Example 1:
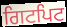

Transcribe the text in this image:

ਗਿਟਪਿਟ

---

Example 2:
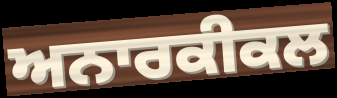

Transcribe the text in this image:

ਅਨਾਰਕੀਕਲ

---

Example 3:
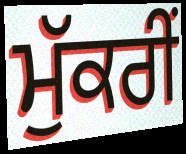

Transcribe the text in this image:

ਮੁੱਕਰੀਂ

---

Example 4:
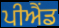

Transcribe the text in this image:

ਪੀਐਂਡ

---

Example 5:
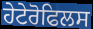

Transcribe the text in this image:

ਹੇਟੇਰੋਫਿਲਸ